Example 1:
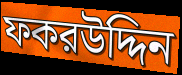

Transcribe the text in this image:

ফকরউদ্দিন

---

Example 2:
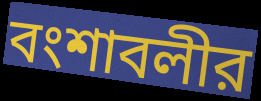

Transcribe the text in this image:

বংশাবলীর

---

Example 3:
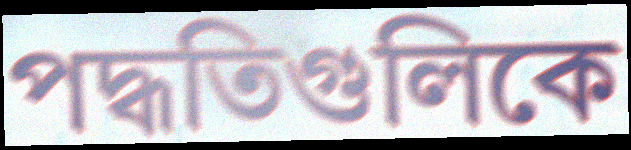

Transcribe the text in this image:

পদ্ধতিগুলিকে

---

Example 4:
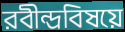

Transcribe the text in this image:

রবীন্দ্রবিষয়ে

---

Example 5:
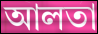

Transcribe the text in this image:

আলতা